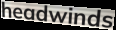
headwinds